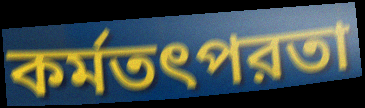
কর্মতৎপরতা